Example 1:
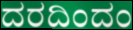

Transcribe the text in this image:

ದರದಿಂದಂ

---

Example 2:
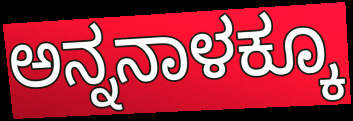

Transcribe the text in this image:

ಅನ್ನನಾಳಕ್ಕೂ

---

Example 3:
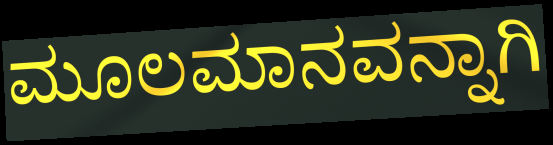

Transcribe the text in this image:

ಮೂಲಮಾನವನ್ನಾಗಿ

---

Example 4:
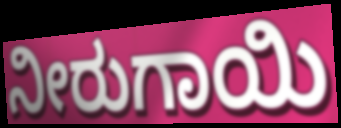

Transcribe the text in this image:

ನೀರುಗಾಯಿ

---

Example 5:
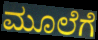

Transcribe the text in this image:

ಮೂಲೆಗೆ